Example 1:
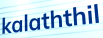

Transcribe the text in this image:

kalaththil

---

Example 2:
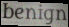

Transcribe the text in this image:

benign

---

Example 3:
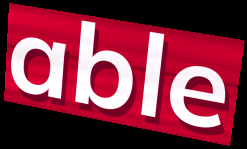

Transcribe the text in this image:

able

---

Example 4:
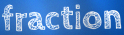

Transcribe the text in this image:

fraction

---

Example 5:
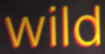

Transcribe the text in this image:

wild